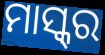
ମାସ୍କ୍‌ର